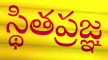
స్థితప్రజ్ఞ